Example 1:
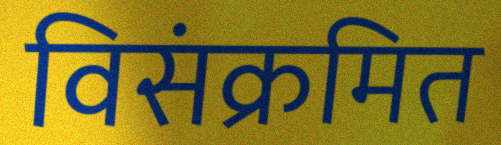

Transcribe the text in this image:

विसंक्रमित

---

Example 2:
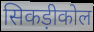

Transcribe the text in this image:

सिकड़ीकोल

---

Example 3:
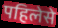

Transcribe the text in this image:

पहिलेसे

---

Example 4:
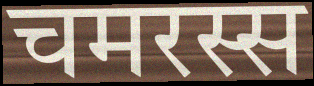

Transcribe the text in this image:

चमरस्स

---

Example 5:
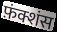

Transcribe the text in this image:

फ़ंक्शंस